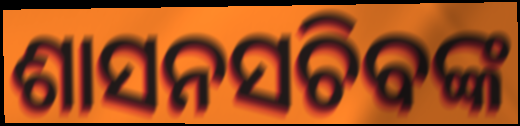
ଶାସନସଚିବଙ୍କ